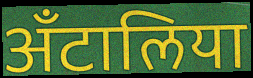
अँटालिया